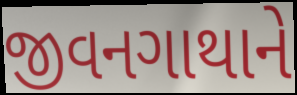
જીવનગાથાને